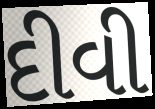
દીવી